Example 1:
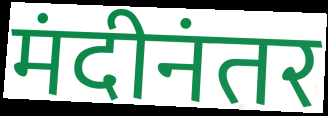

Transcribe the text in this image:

मंदीनंतर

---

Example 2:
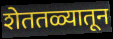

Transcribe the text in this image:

शेततळ्यातून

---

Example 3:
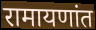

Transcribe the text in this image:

रामायणांत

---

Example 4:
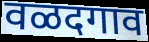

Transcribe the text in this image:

वळदगाव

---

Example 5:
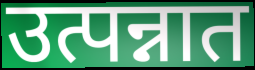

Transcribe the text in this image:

उत्पन्नात